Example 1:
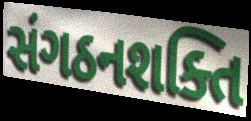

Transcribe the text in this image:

સંગઠનશક્તિ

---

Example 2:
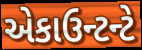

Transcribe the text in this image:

એકાઉન્ટન્ટે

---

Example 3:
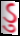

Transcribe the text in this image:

ડુ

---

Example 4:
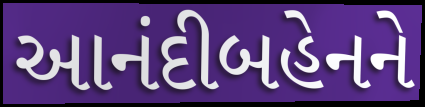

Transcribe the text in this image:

આનંદીબહેનને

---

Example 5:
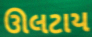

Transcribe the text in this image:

ઊલટાય